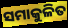
ସମାକୁଳିତ